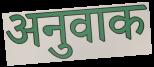
अनुवाक